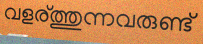
വളര്ത്തുന്നവരുണ്ട്